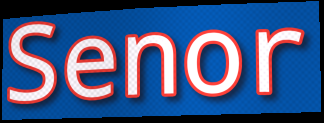
Senor